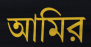
আমির